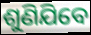
ଶୁଣିଯିବେ